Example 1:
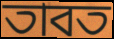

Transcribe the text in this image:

তাবত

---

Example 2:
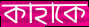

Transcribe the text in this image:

কাহাকে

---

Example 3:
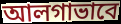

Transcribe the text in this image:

আলগাভাবে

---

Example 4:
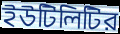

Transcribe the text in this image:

ইউটিলিটির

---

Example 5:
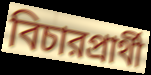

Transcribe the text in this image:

বিচারপ্রার্থী